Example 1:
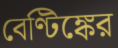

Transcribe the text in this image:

বেণ্টিঙ্কের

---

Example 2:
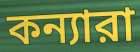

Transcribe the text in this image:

কন্যারা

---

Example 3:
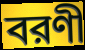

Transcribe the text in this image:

বরণী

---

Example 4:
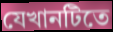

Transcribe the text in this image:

যেখানটিতে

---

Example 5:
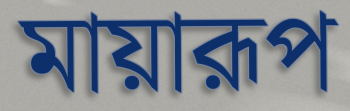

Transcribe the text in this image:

মায়ারূপ